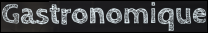
Gastronomique